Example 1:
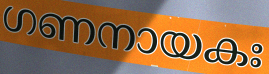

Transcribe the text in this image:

ഗണനായകഃ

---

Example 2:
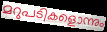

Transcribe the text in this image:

മറുപടികളൊന്നും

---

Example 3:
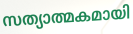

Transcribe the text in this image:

സത്യാത്മകമായി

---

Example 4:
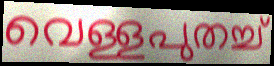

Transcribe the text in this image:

വെള്ളപുതച്ച്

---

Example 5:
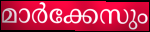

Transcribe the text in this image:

മാർക്കേസും